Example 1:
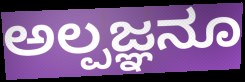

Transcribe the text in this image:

ಅಲ್ಪಜ್ಞನೂ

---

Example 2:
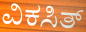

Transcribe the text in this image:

ವಿಕಸಿತ್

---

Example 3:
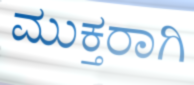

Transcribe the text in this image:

ಮುಕ್ತರಾಗಿ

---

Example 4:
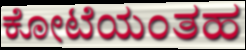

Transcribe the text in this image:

ಕೋಟೆಯಂತಹ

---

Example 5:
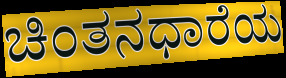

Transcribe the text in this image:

ಚಿಂತನಧಾರೆಯ